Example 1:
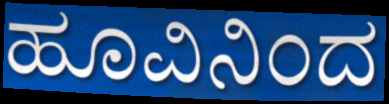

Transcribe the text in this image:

ಹೂವಿನಿಂದ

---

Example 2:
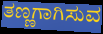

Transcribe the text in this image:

ತಣ್ಣಗಾಗಿಸುವ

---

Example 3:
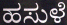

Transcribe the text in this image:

ಹಸುಳೆ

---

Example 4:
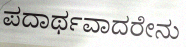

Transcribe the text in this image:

ಪದಾರ್ಥವಾದರೇನು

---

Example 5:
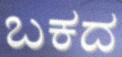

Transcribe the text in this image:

ಬಕದ